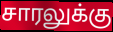
சாரலுக்கு